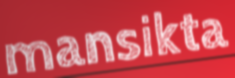
mansikta